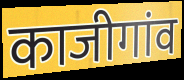
काजीगांव